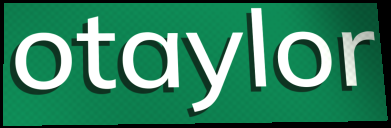
otaylor